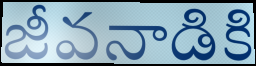
జీవనాడికి